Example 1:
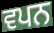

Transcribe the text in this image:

ਵਪਨ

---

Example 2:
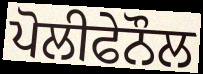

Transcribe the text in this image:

ਪੋਲੀਫੇਨੌਲ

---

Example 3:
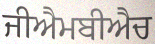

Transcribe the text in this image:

ਜੀਐਮਬੀਐਚ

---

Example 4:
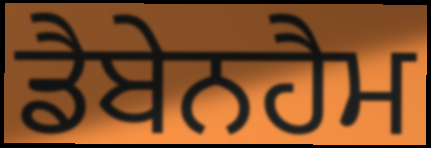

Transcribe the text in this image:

ਡੈਬੇਨਹੈਮ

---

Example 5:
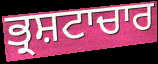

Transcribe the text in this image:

ਭ੍ਰਸ਼ਟਾਚਾਰ